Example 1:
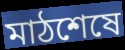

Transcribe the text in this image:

মাঠশেষে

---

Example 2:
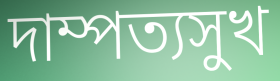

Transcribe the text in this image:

দাম্পত্যসুখ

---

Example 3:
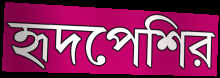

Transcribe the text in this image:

হৃদপেশির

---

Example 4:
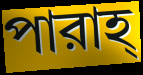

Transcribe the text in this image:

পারাহ্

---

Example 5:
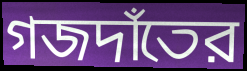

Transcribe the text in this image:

গজদাঁতের